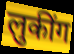
लुकींग